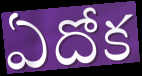
ఏదోక